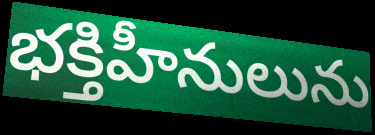
భక్తిహీనులును